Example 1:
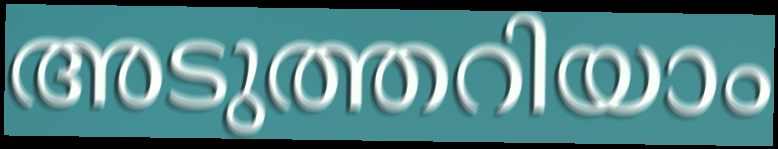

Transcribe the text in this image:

അടുത്തറിയാം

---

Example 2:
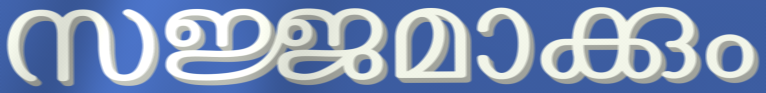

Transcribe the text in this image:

സജ്ജമാക്കും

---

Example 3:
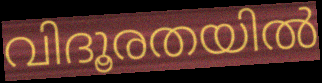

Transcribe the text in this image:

വിദൂരതയിൽ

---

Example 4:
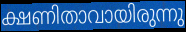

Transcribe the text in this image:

ക്ഷണിതാവായിരുന്നു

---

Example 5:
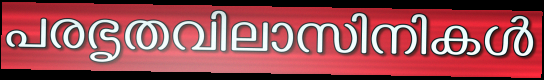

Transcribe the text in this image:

പരഭൃതവിലാസിനികൾ